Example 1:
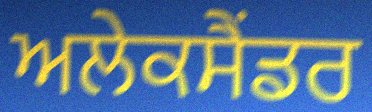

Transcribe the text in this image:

ਅਲੇਕਸੈਂਡਰ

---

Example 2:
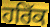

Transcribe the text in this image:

ਹਰਿੱਕ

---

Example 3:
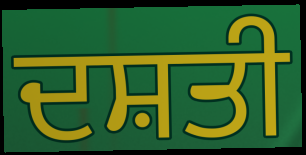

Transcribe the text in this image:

ਦਸ਼ਤੀ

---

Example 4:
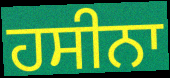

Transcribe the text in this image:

ਹਸੀਨਾ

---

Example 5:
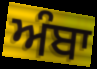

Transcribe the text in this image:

ਅੰਬਾ